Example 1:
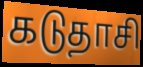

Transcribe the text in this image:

கடுதாசி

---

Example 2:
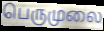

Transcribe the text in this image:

பெருமுலை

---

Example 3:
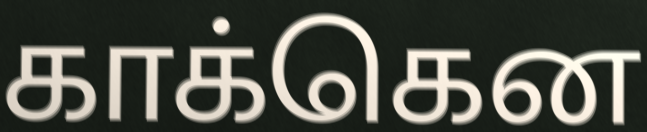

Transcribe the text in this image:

காக்கென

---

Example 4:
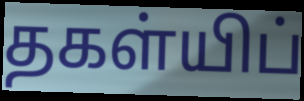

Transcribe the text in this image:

தகள்யிப்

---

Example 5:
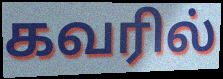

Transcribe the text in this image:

கவரில்